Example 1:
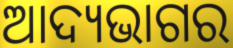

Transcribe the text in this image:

ଆଦ୍ୟଭାଗର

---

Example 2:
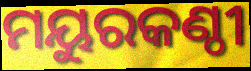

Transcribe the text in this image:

ମୟୁରକଣ୍ଠୀ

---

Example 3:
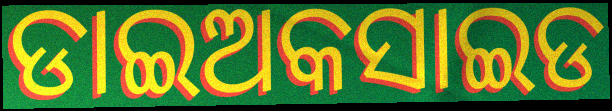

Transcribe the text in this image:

ଡାଇଅକସାଇଡ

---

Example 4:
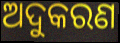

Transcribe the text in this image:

ଅଦୁକରଣ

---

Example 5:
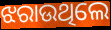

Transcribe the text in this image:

ଝରାଉଥିଲେ